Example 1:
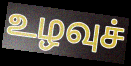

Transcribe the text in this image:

உழவுச்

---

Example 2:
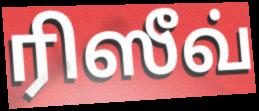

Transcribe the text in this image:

ரிஸீவ்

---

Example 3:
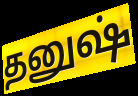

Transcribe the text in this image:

தனுஷ்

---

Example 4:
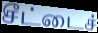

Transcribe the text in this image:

சீட்டைச்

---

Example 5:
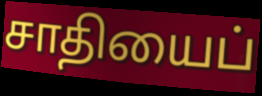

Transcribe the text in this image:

சாதியைப்